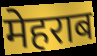
मेहराब